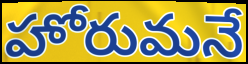
హోరుమనే